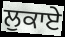
ਲੁਕਾਏ